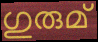
ഗുരുമ്